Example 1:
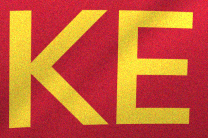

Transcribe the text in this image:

KE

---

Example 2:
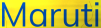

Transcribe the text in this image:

Maruti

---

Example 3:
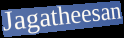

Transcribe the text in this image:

Jagatheesan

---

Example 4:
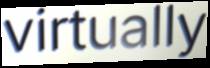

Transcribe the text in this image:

virtually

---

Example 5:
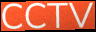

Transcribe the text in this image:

CCTV